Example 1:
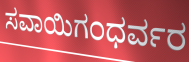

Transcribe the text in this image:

ಸವಾಯಿಗಂಧರ್ವರ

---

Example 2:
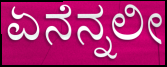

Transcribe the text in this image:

ಏನೆನ್ನಲೀ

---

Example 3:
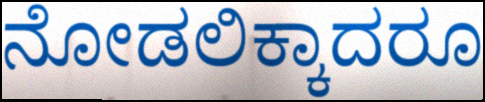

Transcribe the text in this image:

ನೋಡಲಿಕ್ಕಾದರೂ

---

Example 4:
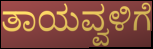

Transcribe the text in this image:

ತಾಯವ್ವಳಿಗೆ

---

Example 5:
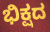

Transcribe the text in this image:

ಭಿಕ್ಷದ